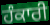
ਹੰਕਾਰੀ